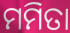
ମମିତା